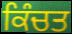
ਕਿੰਚਤ